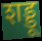
शड्डू